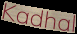
Kadhal